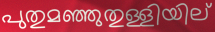
പുതുമഞ്ഞുതുള്ളിയില്